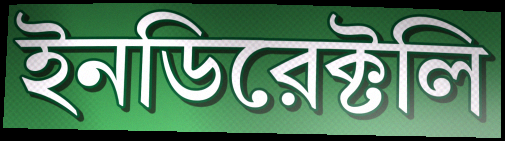
ইনডিরেক্টলি